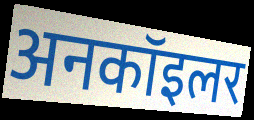
अनकॉइलर